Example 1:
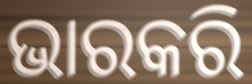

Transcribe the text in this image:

ଭାରକରି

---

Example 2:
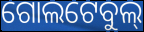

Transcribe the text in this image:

ଗୋଲଟେବୁଲ୍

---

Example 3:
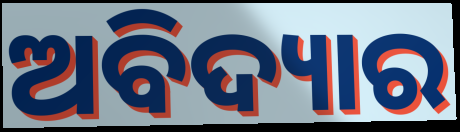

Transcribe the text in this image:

ଅବିଦ୍ୟାର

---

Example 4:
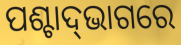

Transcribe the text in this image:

ପଶ୍ଚାଦ୍‍ଭାଗରେ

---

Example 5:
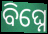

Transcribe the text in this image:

ବିଘ୍ନେ